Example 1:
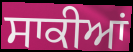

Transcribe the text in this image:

ਸਾਕੀਆਂ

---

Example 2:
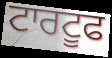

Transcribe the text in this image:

ਟਾਰਟੂਫ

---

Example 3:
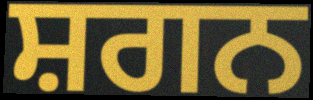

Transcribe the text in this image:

ਸ਼ਗਨ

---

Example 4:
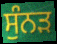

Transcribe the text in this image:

ਸੁੰਨੜ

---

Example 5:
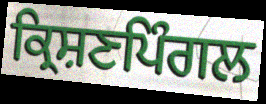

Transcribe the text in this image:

ਕ੍ਰਿਸ਼ਣਪਿੰਗਲ